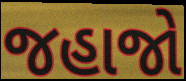
જહાજો